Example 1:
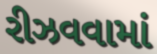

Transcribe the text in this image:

રીઝવવામાં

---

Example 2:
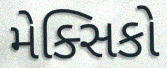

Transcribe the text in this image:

મેક્સિકો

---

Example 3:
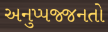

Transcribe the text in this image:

અનુપ્પજ્જનતો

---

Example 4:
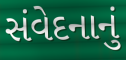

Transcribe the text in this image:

સંવેદનાનું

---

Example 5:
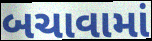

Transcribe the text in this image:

બચાવામાં